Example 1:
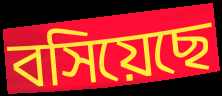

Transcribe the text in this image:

বসিয়েছে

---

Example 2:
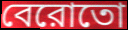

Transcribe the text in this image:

বেরোতো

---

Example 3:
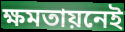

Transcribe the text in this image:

ক্ষমতায়নেই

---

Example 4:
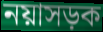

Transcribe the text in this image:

নয়াসড়ক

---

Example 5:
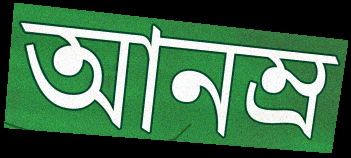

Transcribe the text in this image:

আনম্র